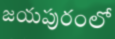
జయపురంలో